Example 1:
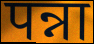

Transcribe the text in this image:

पन्ना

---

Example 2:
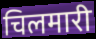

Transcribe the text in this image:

चिलमारी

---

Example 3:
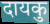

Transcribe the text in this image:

दायकु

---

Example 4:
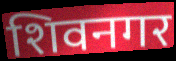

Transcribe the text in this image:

शिवनगर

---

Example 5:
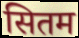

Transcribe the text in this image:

सितम